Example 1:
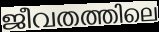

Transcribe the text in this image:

ജീവതത്തിലെ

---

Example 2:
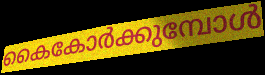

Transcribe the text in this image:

കൈകോർക്കുമ്പോൾ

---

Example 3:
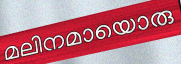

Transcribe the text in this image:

മലിനമായൊരു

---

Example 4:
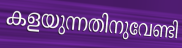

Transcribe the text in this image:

കളയുന്നതിനുവേണ്ടി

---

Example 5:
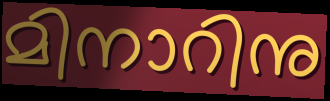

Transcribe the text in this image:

മിനാറിനു